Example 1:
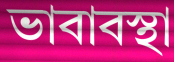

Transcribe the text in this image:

ভাবাবস্থা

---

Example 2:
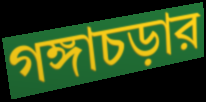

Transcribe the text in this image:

গঙ্গাচড়ার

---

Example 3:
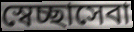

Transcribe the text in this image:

স্বেচ্ছাসেবা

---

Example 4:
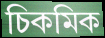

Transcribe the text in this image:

চিকমিক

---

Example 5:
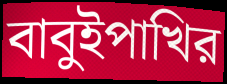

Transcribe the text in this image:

বাবুইপাখির